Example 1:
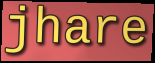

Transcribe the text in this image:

jhare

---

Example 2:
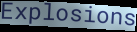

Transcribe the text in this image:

Explosions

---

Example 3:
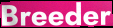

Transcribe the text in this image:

Breeder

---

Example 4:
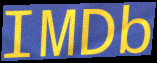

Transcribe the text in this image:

IMDb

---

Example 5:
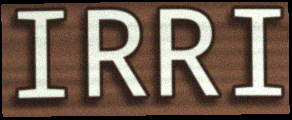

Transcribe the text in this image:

IRRI